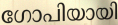
ഗോപിയായി